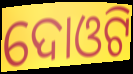
ଦୋଓଟି